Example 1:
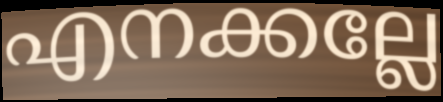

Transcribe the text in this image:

എനക്കല്ലേ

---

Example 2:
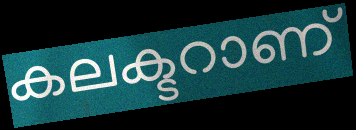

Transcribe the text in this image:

കലക്ടറാണ്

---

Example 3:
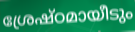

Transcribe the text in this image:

ശ്രേഷ്ഠമായീടും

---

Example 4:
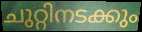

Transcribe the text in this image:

ചുറ്റിനടക്കും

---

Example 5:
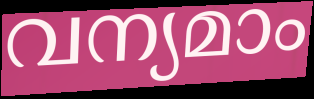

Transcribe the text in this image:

വന്യമാം